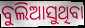
ବୁଲିଆସୁଥିବା